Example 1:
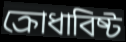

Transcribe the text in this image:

ক্রোধাবিষ্ট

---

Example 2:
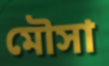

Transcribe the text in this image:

মৌসা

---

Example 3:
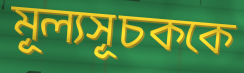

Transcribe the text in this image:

মূল্যসূচককে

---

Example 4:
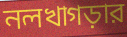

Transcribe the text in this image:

নলখাগড়ার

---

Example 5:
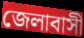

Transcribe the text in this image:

জেলাবাসী